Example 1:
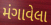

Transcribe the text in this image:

મંગાવેલા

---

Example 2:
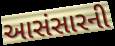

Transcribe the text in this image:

આસંસારની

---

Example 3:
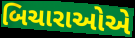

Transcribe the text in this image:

બિચારાઓએ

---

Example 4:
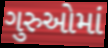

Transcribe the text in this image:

ગુરુઓમાં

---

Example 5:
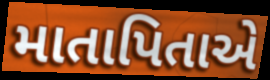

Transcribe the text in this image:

માતાપિતાએ